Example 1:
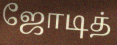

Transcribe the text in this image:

ஜோடித்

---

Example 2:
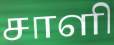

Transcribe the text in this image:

சாளி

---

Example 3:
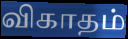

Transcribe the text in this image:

விகாதம்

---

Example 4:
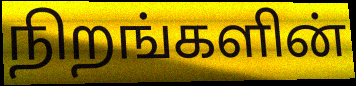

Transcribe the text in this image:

நிறங்களின்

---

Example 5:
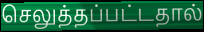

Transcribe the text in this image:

செலுத்தப்பட்டதால்